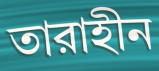
তারাহীন